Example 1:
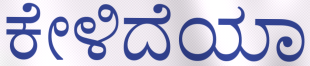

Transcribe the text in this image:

ಕೇಳಿದೆಯಾ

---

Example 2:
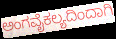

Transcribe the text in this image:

ಅಂಗವೈಕಲ್ಯದಿಂದಾಗಿ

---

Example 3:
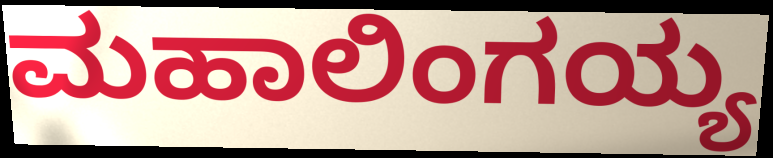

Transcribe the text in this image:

ಮಹಾಲಿಂಗಯ್ಯ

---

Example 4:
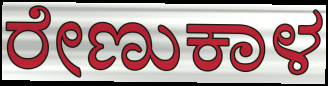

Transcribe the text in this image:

ರೇಣುಕಾಳ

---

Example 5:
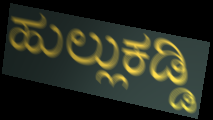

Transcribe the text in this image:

ಹುಲ್ಲುಕಡ್ಡಿ